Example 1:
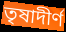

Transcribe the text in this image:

তৃষাদীর্ণ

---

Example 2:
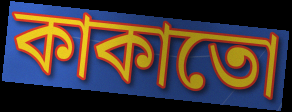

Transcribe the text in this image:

কাকাতো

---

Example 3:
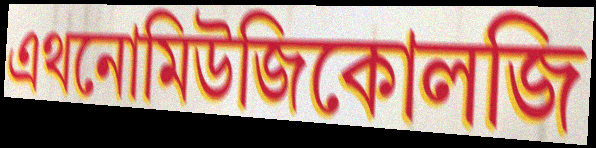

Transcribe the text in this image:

এথনোমিউজিকোলজি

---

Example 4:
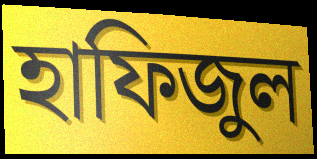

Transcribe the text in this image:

হাফিজুল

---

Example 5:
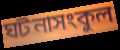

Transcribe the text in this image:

ঘটনাসংকুল